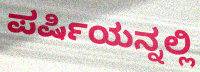
ಪರ್ಷಿಯನ್ನಲ್ಲಿ